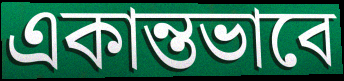
একান্তভাবে